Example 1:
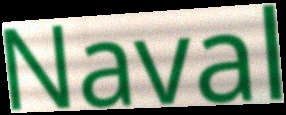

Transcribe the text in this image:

Naval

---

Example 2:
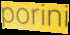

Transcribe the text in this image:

porini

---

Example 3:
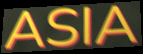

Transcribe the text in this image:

ASIA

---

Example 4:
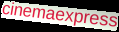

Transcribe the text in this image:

cinemaexpress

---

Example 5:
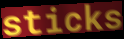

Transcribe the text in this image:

sticks